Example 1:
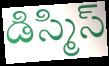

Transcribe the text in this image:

డిస్మిస్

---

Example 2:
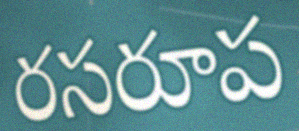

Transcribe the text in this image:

రసరూప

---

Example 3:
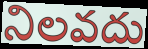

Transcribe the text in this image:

నిలవదు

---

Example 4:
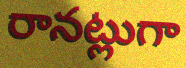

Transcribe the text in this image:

రానట్లుగా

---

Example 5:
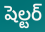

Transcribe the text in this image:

షెల్టర్